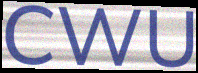
CWU